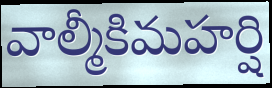
వాల్మీకిమహర్షి